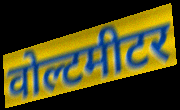
वोल्टमीटर